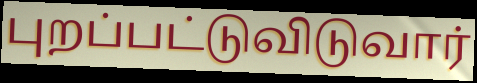
புறப்பட்டுவிடுவார்